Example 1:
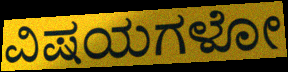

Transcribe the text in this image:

ವಿಷಯಗಳೋ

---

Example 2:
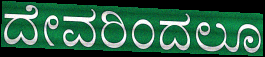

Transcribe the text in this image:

ದೇವರಿಂದಲೂ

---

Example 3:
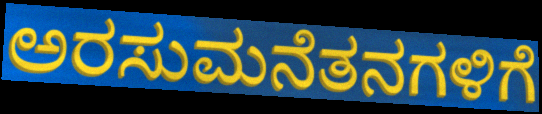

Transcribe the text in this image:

ಅರಸುಮನೆತನಗಳಿಗೆ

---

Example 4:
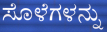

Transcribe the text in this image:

ಸೊಳೆಗಳನ್ನು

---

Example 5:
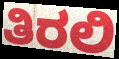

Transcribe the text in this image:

ತಿರಲಿ